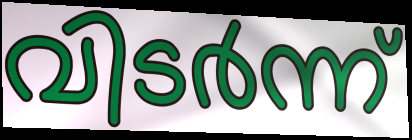
വിടർന്ന്